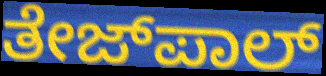
ತೇಜ್‌ಪಾಲ್